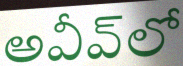
అవీవ్‌లో